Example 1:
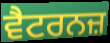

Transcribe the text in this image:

ਵੈਟਰਨਜ਼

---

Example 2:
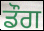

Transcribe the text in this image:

ਡੌਗ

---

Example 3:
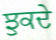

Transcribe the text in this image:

ਝੁਕਦੇ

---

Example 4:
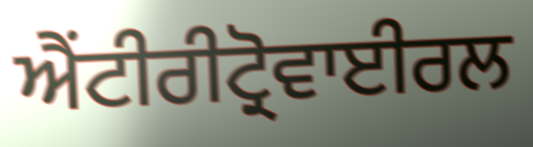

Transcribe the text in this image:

ਐਂਟੀਰੀਟ੍ਰੋਵਾਈਰਲ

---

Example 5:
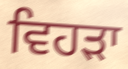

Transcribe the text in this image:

ਵਿਹੜਾ